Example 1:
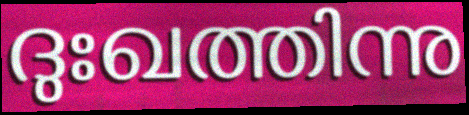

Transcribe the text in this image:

ദുഃഖത്തിന്നു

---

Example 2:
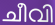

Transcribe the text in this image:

ചീവി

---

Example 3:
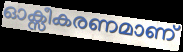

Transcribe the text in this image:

ഓക്സീകരണമാണ്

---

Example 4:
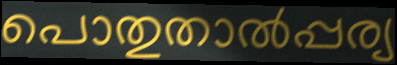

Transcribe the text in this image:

പൊതുതാൽപ്പര്യ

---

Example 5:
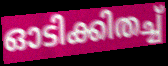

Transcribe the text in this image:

ഓടിക്കിതച്ച്